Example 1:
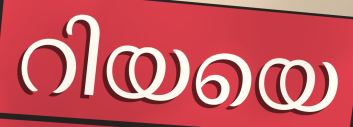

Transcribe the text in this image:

റിയയെ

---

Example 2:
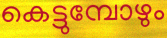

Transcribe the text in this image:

കെട്ടുമ്പോഴും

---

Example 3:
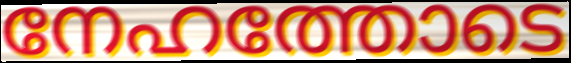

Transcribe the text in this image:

നേഹത്തോടെ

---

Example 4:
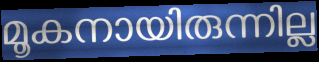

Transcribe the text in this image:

മൂകനായിരുന്നില്ല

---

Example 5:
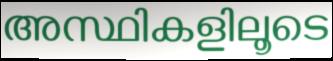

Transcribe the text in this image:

അസ്ഥികളിലൂടെ